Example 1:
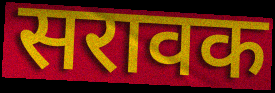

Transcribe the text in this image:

सरावक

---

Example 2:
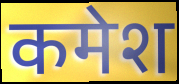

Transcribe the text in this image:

कमेश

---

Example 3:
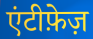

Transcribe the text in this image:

एंटीफ़ेज़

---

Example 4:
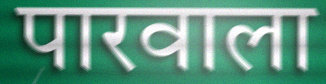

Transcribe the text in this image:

पारवाला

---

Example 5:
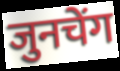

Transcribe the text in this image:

जुनचेंग